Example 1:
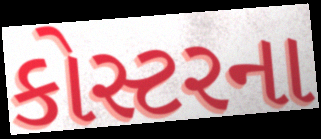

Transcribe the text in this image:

કોસ્ટરના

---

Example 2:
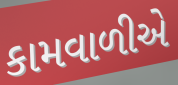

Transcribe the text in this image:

કામવાળીએ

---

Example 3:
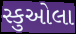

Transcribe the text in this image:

સ્કુઓલા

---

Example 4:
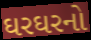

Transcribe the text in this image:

ઘરઘરનો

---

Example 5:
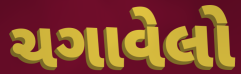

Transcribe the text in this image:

ચગાવેલો